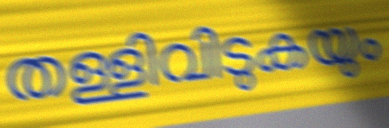
തള്ളിവിടുകയും